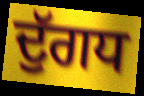
ਦੁੱਗਧ